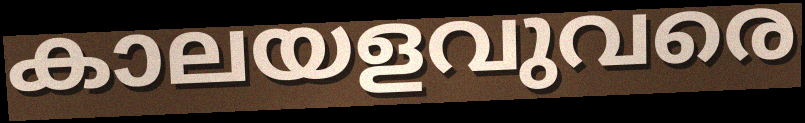
കാലയളവുവരെ